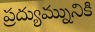
ప్రద్యుమ్నునికి